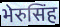
भेरुसिंह